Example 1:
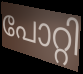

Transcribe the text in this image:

പോറ്റി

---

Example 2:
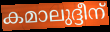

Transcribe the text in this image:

കമാലുദ്ദീന്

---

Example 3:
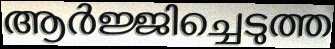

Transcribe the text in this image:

ആർജ്ജിച്ചെടുത്ത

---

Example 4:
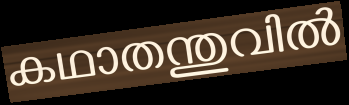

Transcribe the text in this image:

കഥാതന്തുവിൽ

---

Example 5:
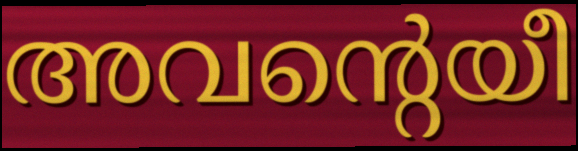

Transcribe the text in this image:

അവന്റെയീ